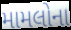
મામલોના